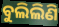
ବୁଲିଲିଣି